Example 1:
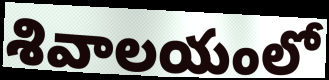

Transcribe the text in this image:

శివాలయంలో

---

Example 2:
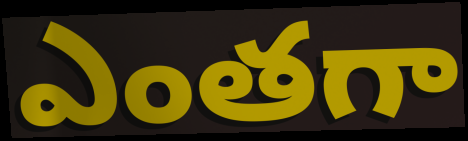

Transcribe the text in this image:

ఎంతగా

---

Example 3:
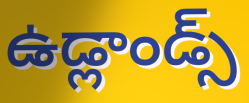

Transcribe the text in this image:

ఉడ్లాండ్స్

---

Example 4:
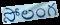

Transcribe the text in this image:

సోలంగ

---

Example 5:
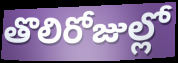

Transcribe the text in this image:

తొలిరోజుల్లో